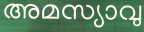
അമസ്യാവു